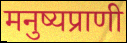
मनुष्यप्राणी